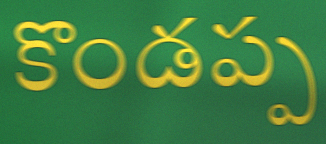
కొండప్ప